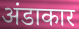
अंडाकार